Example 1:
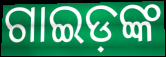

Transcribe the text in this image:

ଗାଇଡ଼ଙ୍କ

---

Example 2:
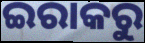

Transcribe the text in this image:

ଇରାକରୁ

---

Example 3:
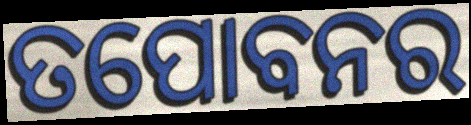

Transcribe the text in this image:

ତପୋବନର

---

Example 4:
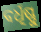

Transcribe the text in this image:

ବର୍ଧିଷ୍ଣୁ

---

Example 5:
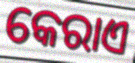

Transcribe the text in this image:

କେରାଏ